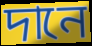
দানে